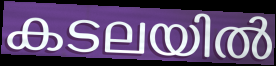
കടലയിൽ